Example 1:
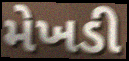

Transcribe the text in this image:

મેખડી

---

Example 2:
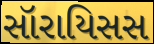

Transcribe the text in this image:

સૉરાયિસસ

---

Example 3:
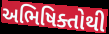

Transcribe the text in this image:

અભિષિક્તોથી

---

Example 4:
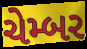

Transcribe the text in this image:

ચેમ્બર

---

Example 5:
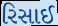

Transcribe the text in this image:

રિસાઈ